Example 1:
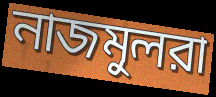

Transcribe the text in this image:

নাজমুলরা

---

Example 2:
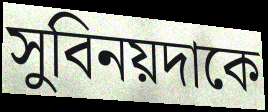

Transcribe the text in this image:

সুবিনয়দাকে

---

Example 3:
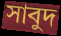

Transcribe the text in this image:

সাবুদ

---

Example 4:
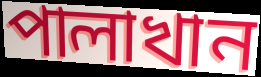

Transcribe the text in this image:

পালাখান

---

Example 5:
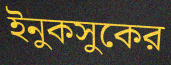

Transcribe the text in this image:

ইনুকসুকের